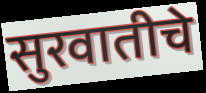
सुरवातीचे